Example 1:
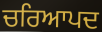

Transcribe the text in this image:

ਚਰਿਆਪਦ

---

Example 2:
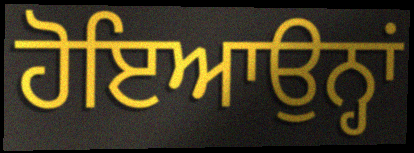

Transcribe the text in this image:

ਹੋਇਆਉਨ੍ਹਾਂ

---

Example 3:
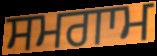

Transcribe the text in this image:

ਸਮਗਾਮ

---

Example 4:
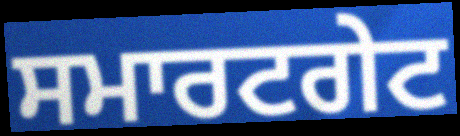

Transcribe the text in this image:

ਸਮਾਰਟਗੇਟ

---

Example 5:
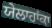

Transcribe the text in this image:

ਯੇਲਾਹਾਂਕਾ